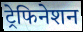
ट्रेफिनेशन